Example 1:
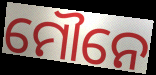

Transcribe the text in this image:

ମୌନେ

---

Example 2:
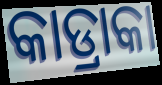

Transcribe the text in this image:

କାଡ୍ରାକା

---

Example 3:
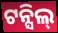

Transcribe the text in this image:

ଟନ୍ସିଲ୍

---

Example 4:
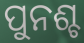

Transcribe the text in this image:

ପୁନଶ୍ଚ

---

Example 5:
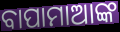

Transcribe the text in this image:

ବାପାମାଆଙ୍କ